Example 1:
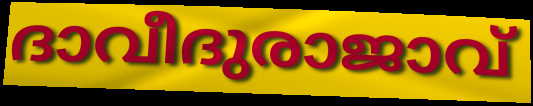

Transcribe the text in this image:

ദാവീദുരാജാവ്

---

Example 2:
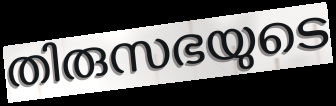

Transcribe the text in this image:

തിരുസഭയുടെ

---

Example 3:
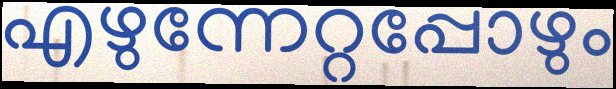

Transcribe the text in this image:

എഴുന്നേറ്റപ്പോഴും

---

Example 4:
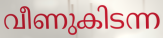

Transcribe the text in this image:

വീണുകിടന്ന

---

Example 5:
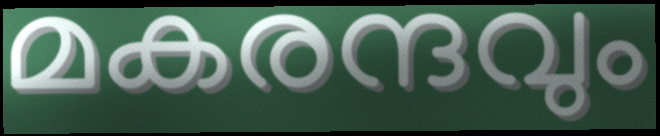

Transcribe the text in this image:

മകരന്ദവും